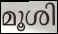
മൂശി